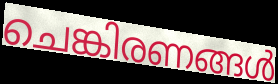
ചെങ്കിരണങ്ങൾ